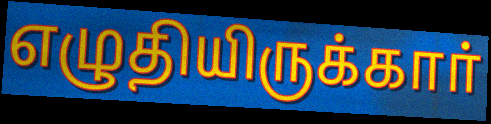
எழுதியிருக்கார்